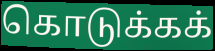
கொடுக்கக்